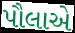
પૌલાએ